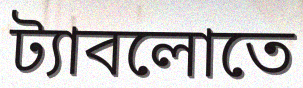
ট্যাবলোতে